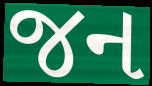
જન